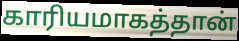
காரியமாகத்தான்